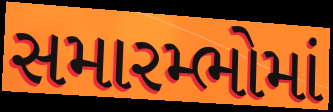
સમારમ્ભોમાં